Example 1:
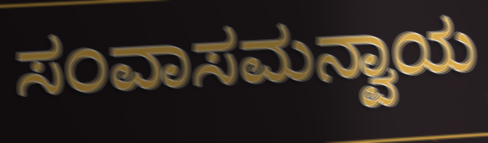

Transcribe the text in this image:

ಸಂವಾಸಮನ್ವಾಯ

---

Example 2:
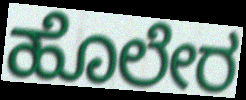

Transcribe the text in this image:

ಹೊಲೇರ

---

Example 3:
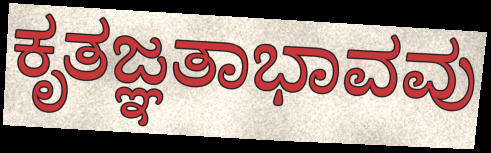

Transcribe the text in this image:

ಕೃತಜ್ಞತಾಭಾವವು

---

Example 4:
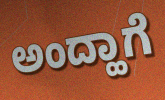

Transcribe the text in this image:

ಅಂದ್ಹಾಗೆ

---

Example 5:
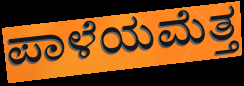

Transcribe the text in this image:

ಪಾಳೆಯಮೆತ್ತ